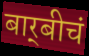
बार्बीचं